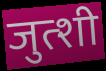
जुत्शी